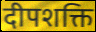
दीपशक्ति